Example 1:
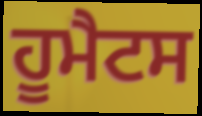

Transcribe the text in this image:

ਹੂਮੈਟਸ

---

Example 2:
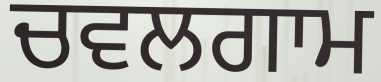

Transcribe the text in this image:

ਚਵਲਗਾਮ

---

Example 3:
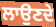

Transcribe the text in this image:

ਲਾਉਣਦੇ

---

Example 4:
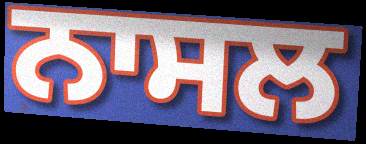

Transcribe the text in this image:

ਨਾਸਲ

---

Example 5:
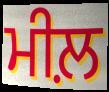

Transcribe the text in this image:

ਮੀਲ਼